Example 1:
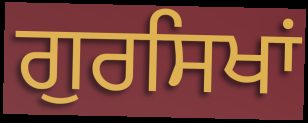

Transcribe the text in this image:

ਗੁਰਸਿਖਾਂ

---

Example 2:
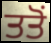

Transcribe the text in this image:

ਤਤੋਂ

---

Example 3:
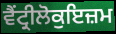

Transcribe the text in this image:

ਵੈਂਟ੍ਰੀਲੋਕੁਇਜ਼ਮ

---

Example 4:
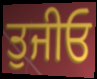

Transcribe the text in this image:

ਤੁਜੀਓ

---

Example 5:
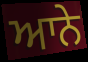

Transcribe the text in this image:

ਆਨੇ